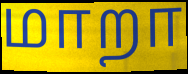
மாறா